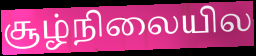
சூழ்நிலையில